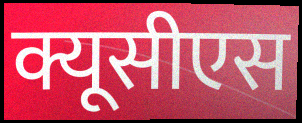
क्यूसीएस